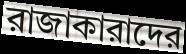
রাজাকারাদের